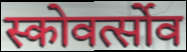
स्कोवर्त्सोव